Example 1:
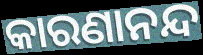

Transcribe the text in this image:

କାରଣାନନ୍ଦ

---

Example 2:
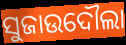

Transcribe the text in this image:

ସୁଜାଉଦୌଲା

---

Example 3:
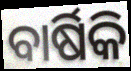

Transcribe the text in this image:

ବାର୍ଷିକି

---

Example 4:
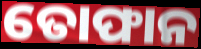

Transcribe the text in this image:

ତୋଫାନ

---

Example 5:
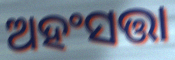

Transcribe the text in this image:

ଅହଂସତ୍ତା